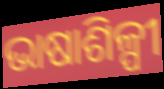
ଭାଷାଶିଳ୍ପୀ